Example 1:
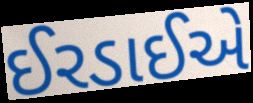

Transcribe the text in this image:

ઈરડાઈએ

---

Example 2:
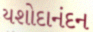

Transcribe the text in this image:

યશોદાનંદન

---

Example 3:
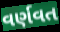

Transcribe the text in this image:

વર્ણવત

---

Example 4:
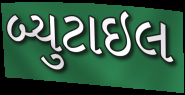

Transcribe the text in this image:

બ્યુટાઇલ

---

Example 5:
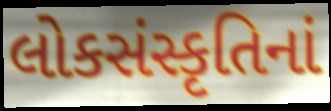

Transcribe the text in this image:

લોકસંસ્કૃતિનાં